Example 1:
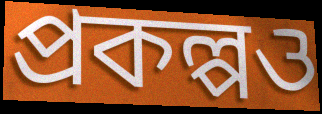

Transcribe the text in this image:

প্রকল্পও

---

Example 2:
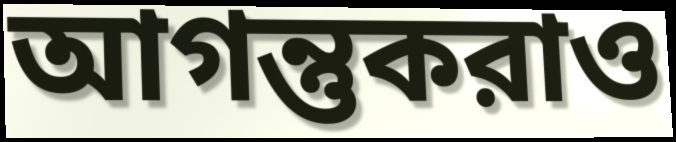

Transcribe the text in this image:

আগন্তুকরাও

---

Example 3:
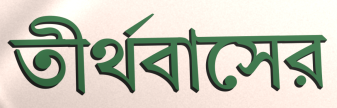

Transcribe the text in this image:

তীর্থবাসের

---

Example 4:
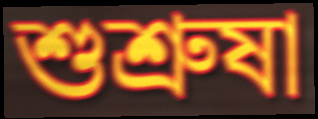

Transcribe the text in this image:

শুশ্রুষা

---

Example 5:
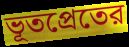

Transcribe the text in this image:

ভূতপ্রেতের